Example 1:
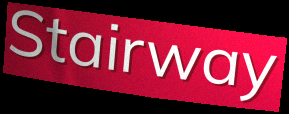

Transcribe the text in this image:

Stairway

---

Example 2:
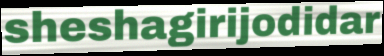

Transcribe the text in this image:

sheshagirijodidar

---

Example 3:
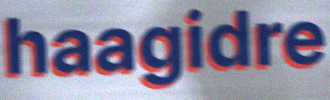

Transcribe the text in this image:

haagidre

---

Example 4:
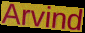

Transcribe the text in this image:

Arvind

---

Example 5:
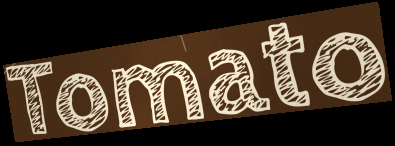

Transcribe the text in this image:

Tomato